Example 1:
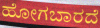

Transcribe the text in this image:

ಹೋಗಬಾರದೆ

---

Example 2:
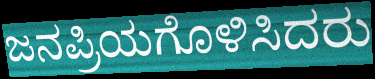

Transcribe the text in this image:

ಜನಪ್ರಿಯಗೊಳಿಸಿದರು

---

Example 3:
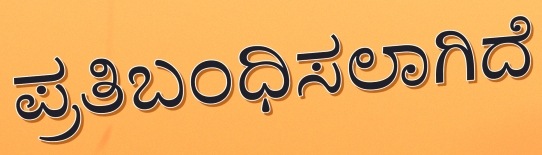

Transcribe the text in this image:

ಪ್ರತಿಬಂಧಿಸಲಾಗಿದೆ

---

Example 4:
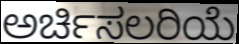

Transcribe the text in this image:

ಅರ್ಚಿಸಲರಿಯೆ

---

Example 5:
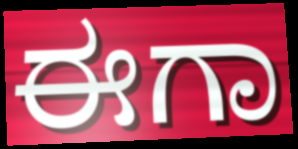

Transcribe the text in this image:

ಈಗಾ